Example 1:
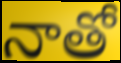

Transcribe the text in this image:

నాతో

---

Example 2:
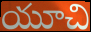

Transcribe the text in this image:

యూచి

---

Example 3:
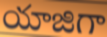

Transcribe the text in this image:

యాజిగా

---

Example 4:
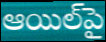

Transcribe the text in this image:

ఆయిల్‌పై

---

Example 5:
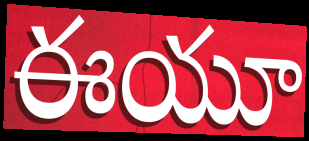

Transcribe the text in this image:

ఈయూ